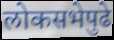
लोकसभेपुढे